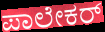
ಪಾಲೇಕರ್